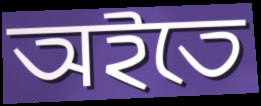
অইতে